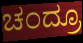
ಚಂದ್ರೂ